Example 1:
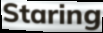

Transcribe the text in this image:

Staring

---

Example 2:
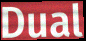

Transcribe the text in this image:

Dual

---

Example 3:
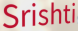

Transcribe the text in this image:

Srishti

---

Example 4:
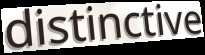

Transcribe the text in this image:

distinctive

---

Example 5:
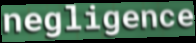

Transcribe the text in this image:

negligence